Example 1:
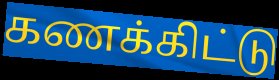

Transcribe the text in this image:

கணக்கிட்டு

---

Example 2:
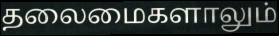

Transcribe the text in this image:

தலைமைகளாலும்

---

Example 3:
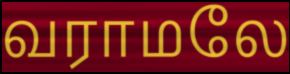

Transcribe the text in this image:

வராமலே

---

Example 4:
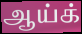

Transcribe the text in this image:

ஆய்க்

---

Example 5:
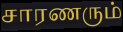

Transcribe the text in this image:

சாரணரும்